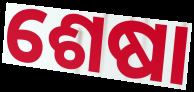
ଶେଷା